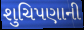
શુચિપણાની